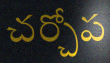
చర్చోప